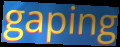
gaping